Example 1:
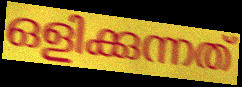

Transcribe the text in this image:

ഒളിക്കുന്നത്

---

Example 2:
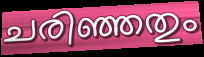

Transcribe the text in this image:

ചരിഞ്ഞതും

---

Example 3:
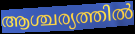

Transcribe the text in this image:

ആശ്ചര്യത്തിൽ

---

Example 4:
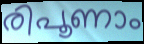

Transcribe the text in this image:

രിപൂണാം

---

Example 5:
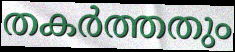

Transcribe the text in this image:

തകർത്തതും